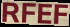
RFEF